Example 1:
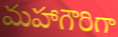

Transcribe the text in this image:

మహాగౌరిగా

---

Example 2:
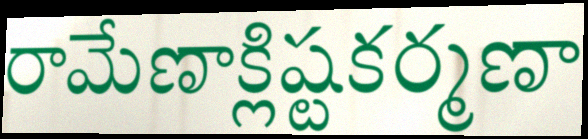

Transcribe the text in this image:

రామేణాక్లిష్టకర్మణా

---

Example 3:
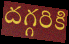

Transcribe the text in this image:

దగ్గరికి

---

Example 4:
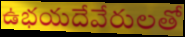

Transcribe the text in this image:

ఉభయదేవేరులతో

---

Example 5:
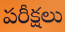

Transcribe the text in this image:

పరీక్షలు